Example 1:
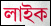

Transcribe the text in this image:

লাইক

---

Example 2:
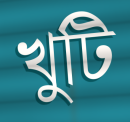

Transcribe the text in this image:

খুটি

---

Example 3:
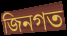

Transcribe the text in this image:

জিনগত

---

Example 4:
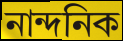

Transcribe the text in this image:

নান্দনিক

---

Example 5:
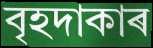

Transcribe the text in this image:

বৃহদাকাৰ